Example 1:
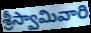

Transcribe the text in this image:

శ్రీస్వామివారి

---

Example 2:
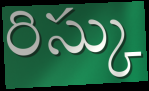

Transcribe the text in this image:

రిస్కు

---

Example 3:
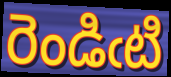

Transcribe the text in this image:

రెండిఁటి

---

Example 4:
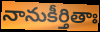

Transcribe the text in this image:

నానుకీర్తితాః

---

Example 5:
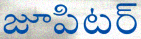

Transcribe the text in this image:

జూపిటర్